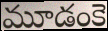
మూడంకె